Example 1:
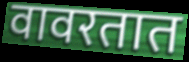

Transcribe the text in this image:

वावरतात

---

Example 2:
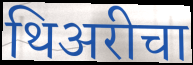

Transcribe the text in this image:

थिअरीचा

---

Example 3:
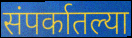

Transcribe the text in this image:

संपर्कातल्या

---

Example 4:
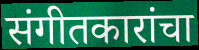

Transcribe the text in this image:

संगीतकारांचा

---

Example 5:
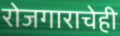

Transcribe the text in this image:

रोजगाराचेही